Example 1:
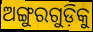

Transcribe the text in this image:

ଅଙ୍ଗୁରଗୁଡ଼ିକୁ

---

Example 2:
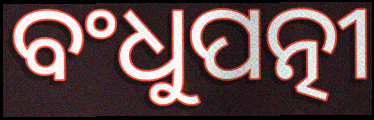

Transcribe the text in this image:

ବଂଧୁପତ୍ନୀ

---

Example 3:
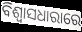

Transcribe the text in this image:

ବିଶ୍ଵାସଧାରାରେ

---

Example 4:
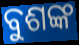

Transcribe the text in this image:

ବୁଶଙ୍କ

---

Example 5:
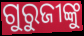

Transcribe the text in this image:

ଗୁରୁଜୀଙ୍କୁ